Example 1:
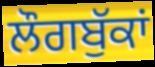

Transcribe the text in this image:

ਲੌਗਬੁੱਕਾਂ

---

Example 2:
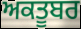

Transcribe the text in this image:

ਅਕਤੂਬਰ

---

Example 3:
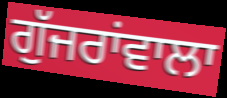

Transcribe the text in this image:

ਗੁੱਜਰਾਂਵਾਲਾ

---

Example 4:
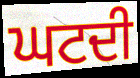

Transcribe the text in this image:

ਘਟਦੀ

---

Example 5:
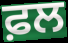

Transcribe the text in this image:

ਫ਼ਲ